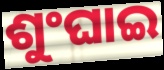
ଶୁଂଘାଇ